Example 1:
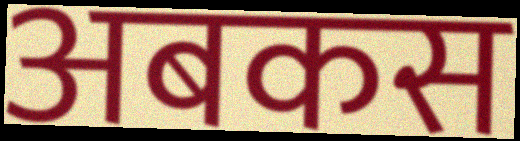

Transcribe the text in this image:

अबकस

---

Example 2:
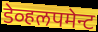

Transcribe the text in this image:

डेव्हलपमेन्ट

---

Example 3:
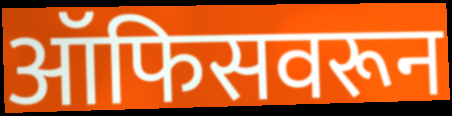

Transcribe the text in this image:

ऑफिसवरून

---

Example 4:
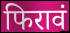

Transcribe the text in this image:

फिरावं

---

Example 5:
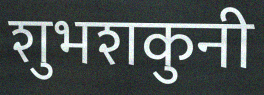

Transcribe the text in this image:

शुभशकुनी